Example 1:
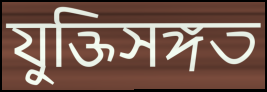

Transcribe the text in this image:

যুক্তিসঙ্গত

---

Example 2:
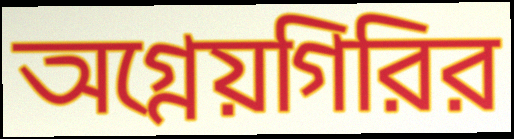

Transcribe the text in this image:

অগ্নেয়গিরির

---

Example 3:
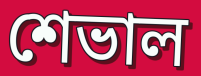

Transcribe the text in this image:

শেভাল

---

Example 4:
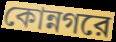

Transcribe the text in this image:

কোন্নগরে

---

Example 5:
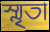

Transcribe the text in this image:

স্মৃতা